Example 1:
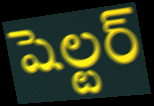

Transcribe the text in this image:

షెల్టర్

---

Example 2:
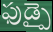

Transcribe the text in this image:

ఫుడ్పై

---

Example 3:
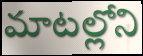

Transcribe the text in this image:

మాటల్లోని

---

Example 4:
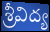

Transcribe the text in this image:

శ్రీవిద్య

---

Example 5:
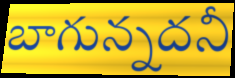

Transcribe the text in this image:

బాగున్నదనీ